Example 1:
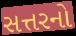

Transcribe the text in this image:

સત્તરનો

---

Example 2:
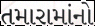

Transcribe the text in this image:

તમારામાંનો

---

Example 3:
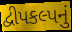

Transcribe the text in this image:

દ્વીપકલ્પનું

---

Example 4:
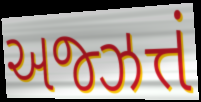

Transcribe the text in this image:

અજ્ઝત્તં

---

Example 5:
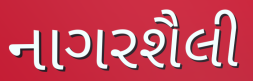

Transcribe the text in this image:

નાગરશૈલી